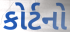
કોર્ટનો